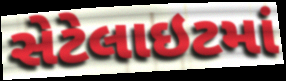
સેટેલાઇટમાં